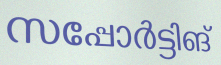
സപ്പോർട്ടിങ്